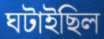
ঘটাইছিল